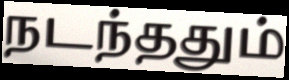
நடந்ததும்